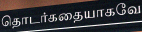
தொடர்கதையாகவே